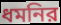
ধমনির